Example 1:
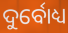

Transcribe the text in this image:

ଦୁର୍ବୋଧ୍ୟ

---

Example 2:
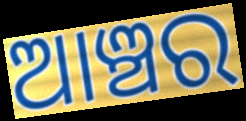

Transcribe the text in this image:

ଆଞ୍ଚର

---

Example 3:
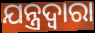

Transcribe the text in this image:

ଯନ୍ତ୍ରଦ୍ବାରା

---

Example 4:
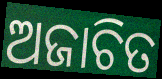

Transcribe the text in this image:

ଅଜାଚିତ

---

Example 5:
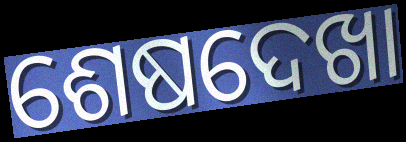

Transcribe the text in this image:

ଶେଷଦେଖା